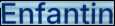
Enfantin